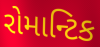
રોમાન્ટિક